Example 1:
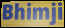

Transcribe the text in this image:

Bhimji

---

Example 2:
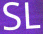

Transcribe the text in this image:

SL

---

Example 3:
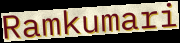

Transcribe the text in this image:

Ramkumari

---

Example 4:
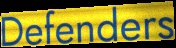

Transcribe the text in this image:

Defenders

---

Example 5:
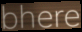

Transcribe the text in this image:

bhere